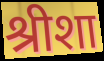
श्रीशा